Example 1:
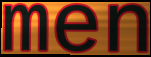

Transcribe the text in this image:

men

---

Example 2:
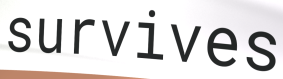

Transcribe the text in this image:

survives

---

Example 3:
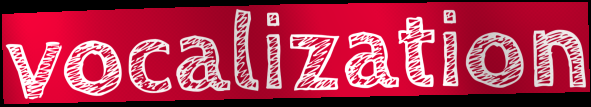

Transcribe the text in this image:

vocalization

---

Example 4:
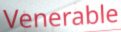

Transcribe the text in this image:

Venerable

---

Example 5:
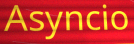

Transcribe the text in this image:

Asyncio